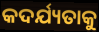
କଦର୍ଯ୍ୟତାକୁ